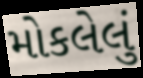
મોકલેલું